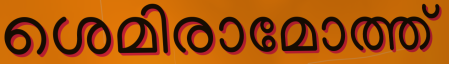
ശെമിരാമോത്ത്